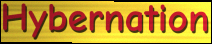
Hybernation